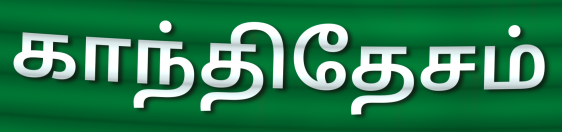
காந்திதேசம்